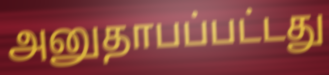
அனுதாபப்பட்டது